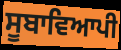
ਸੂਬਾਵਿਆਪੀ